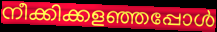
നീക്കിക്കളഞ്ഞപ്പോൾ